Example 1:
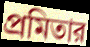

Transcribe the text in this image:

প্রমিতার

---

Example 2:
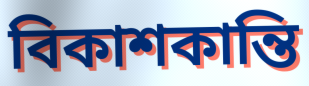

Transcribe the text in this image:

বিকাশকান্তি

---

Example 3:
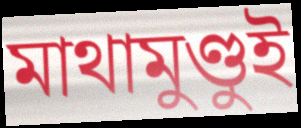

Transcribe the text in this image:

মাথামুণ্ডুই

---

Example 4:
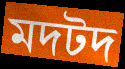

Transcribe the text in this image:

মদটদ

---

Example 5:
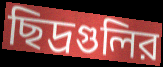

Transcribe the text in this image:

ছিদ্রগুলির